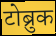
टोब्रुक